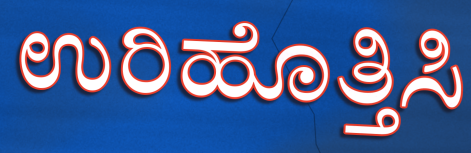
ಉರಿಹೊತ್ತಿಸಿ